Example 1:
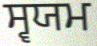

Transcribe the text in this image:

ਸ੍ਵਯਮ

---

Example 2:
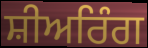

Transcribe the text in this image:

ਸ਼ੀਅਰਿੰਗ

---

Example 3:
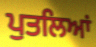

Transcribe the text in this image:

ਪੁਤਲਿਆਂ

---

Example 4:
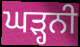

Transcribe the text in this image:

ਘੜ੍ਹਨੀ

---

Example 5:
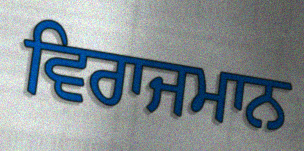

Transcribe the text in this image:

ਵਿਰਾਜਮਾਨ